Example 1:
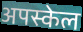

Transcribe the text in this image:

अपस्केल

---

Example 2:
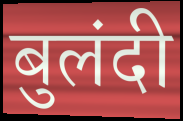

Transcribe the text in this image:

बुलंदी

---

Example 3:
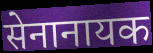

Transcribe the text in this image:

सेनानायक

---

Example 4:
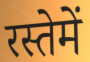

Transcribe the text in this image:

रस्तेमें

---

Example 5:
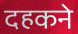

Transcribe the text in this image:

दहकने